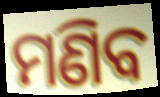
ମଣିବ